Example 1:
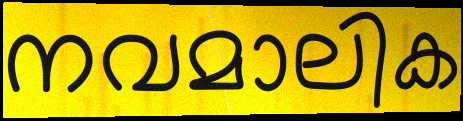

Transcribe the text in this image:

നവമാലിക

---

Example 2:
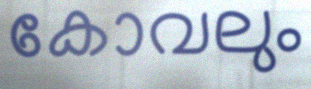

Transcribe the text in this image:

കോവലും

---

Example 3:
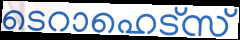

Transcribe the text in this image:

ടെറാഹെട്സ്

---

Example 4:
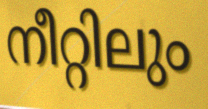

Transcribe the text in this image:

നീറ്റിലും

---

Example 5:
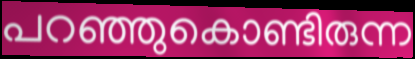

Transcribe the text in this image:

പറഞ്ഞുകൊണ്ടിരുന്ന